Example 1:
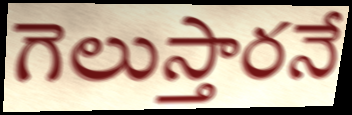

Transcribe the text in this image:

గెలుస్తారనే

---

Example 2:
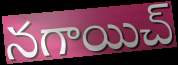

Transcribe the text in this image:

నగాయిచ్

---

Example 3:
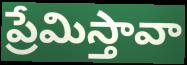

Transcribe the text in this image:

ప్రేమిస్తావా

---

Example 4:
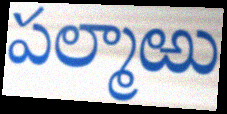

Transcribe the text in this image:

పల్మాఱు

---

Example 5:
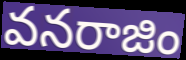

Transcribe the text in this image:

వనరాజిం